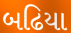
બઢિયા